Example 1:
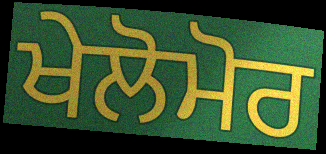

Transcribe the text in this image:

ਖੇਲੋਮੋਰ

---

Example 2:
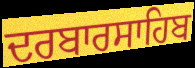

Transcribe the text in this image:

ਦਰਬਾਰਸਾਹਿਬ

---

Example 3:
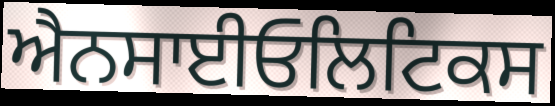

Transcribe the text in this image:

ਐਨਸਾਈਓਲਿਟਿਕਸ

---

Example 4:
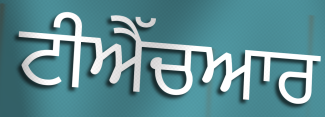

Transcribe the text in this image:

ਟੀਐੱਚਆਰ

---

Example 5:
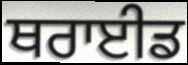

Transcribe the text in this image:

ਥਰਾਈਡ